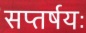
सप्तर्षयः